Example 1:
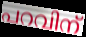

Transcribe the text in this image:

പറവിന്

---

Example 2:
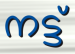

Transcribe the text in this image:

നട്ട്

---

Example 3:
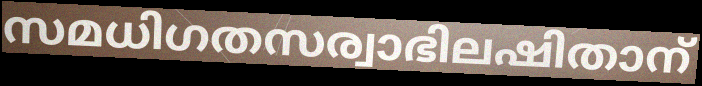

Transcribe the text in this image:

സമധിഗതസര്വാഭിലഷിതാന്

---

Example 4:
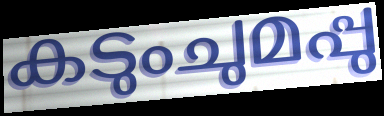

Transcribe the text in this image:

കടുംചുമപ്പു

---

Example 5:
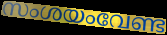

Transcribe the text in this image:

സംശയംവേണ്ട